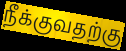
நீக்குவதற்கு